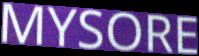
MYSORE